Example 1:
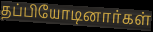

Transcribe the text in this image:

தப்பியோடினார்கள்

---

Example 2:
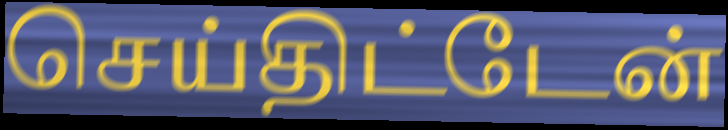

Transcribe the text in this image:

செய்திட்டேன்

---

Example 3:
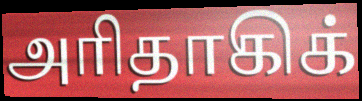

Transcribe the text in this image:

அரிதாகிக்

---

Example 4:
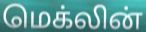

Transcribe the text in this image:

மெக்லின்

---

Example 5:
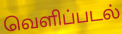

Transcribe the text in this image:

வெளிப்படல்